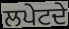
ਲਪੇਟਦੇ